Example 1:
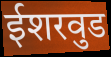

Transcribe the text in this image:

ईशरवुड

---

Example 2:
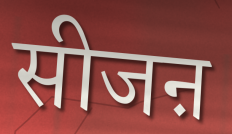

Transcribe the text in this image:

सीजऩ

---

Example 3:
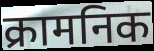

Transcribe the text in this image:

क्रामनिक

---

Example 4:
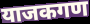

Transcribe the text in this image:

याजकगण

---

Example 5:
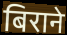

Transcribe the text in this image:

बिराने